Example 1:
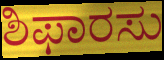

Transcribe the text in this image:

ಶಿಫಾರಸು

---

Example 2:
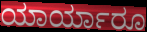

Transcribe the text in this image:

ಯಾರ್ಯಾರೂ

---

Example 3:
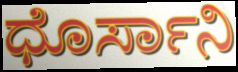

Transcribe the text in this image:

ಧೊರ್ಸಾನಿ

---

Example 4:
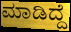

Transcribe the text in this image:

ಮಾಡಿದ್ದೆ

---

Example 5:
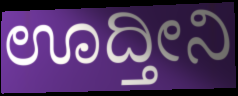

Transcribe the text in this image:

ಊದ್ತೀನಿ